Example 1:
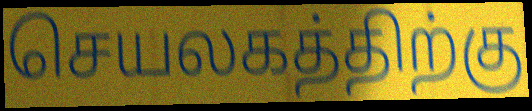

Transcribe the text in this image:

செயலகத்திற்கு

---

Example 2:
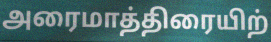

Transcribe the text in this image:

அரைமாத்திரையிற்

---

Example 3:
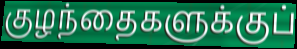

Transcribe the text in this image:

குழந்தைகளுக்குப்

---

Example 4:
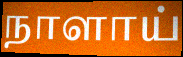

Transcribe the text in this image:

நாளாய்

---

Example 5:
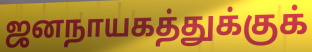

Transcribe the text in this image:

ஜனநாயகத்துக்குக்